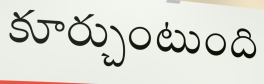
కూర్చుంటుంది